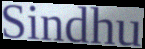
Sindhu